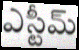
ఎస్టీమ్